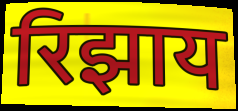
रिझाय